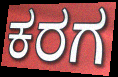
ಕರಗ